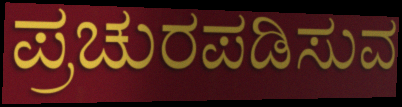
ಪ್ರಚುರಪಡಿಸುವ